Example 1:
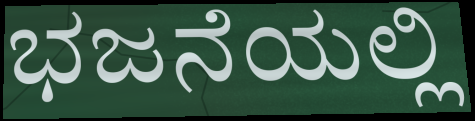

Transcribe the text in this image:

ಭಜನೆಯಲ್ಲಿ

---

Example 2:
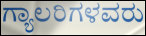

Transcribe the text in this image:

ಗ್ಯಾಲರಿಗಳವರು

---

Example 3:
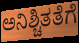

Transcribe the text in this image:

ಅನಿಶ್ಚಿತತೆಗೆ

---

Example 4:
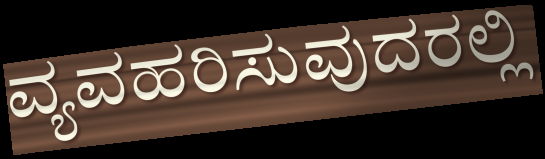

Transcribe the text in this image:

ವ್ಯವಹರಿಸುವುದರಲ್ಲಿ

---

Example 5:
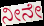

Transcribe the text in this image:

ನೀನೇ